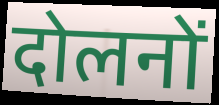
दोलनों